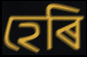
হেৰি